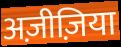
अज़ीज़िया